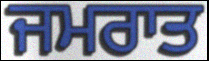
ਜਮਰਾਤ